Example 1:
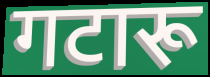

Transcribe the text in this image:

गटारू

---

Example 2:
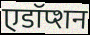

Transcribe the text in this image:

एडॉप्शन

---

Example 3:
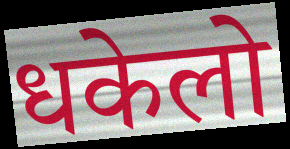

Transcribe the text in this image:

धकेलो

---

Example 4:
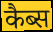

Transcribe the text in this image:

कैब्स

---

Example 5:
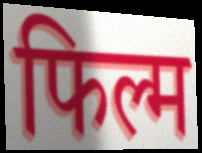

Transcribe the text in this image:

फिल्‍म